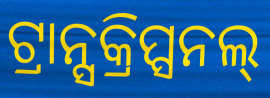
ଟ୍ରାନ୍ସକ୍ରିପ୍ସନଲ୍